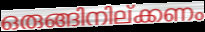
ഒരുങ്ങിനില്ക്കണം